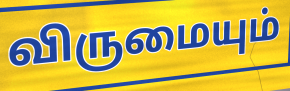
விருமையும்